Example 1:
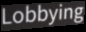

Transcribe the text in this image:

Lobbying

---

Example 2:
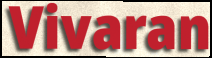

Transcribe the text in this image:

Vivaran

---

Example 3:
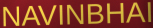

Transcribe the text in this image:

NAVINBHAI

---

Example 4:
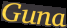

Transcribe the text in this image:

Guna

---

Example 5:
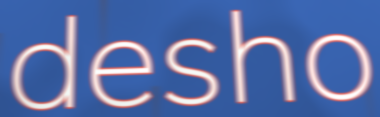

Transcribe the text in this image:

desho